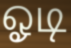
ஓடி